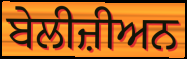
ਬੇਲੀਜ਼ੀਅਨ